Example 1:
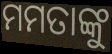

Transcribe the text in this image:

ମମତାଙ୍କୁ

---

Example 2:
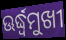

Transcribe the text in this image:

ଊର୍ଦ୍ଧ୍ବମୁଖୀ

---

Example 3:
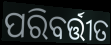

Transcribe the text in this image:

ପରିବର୍ତ୍ତୀତ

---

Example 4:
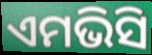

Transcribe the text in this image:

ଏମଭିସି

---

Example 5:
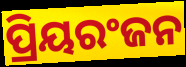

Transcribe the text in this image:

ପ୍ରିୟରଂଜନ